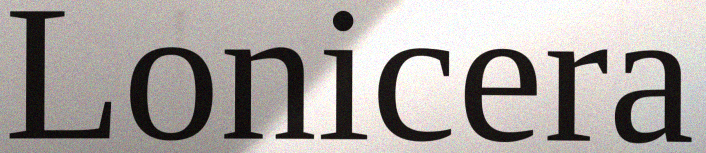
Lonicera